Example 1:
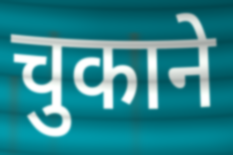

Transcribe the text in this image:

चुकाने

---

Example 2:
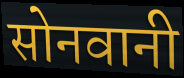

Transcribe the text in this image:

सोनवानी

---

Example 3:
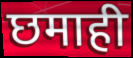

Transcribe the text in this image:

छमाही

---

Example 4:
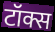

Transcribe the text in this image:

टॉक्स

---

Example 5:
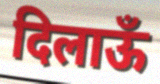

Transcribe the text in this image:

दिलाऊँ